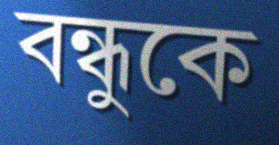
বন্ধুকে